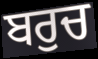
ਬਰੁਚ